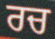
ਰਚ